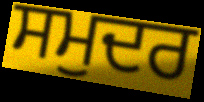
ਸਮੁਦਰ